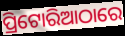
ପ୍ରିଟୋରିଆଠାରେ